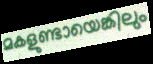
മകളുണ്ടായെങ്കിലും